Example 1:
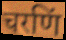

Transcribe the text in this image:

चरणिं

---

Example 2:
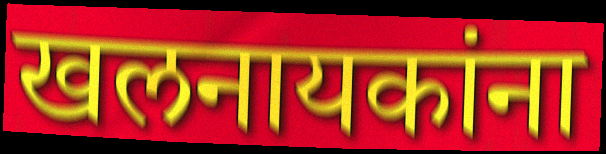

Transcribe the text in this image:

खलनायकांना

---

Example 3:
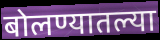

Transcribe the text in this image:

बोलण्यातल्या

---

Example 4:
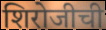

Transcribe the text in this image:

शिरोजीची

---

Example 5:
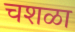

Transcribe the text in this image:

चशळा